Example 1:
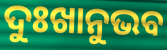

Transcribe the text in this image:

ଦୁଃଖାନୁଭବ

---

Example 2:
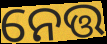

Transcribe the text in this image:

ନେତ୍ତ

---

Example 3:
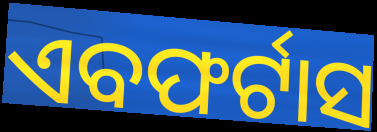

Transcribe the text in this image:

ଏବଫର୍ଟାସ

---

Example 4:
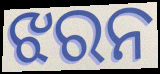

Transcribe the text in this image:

ଝରନ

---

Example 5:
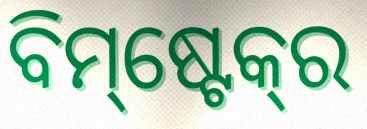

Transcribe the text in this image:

ବିମ୍‌ଷ୍ଟେକ୍‌ର